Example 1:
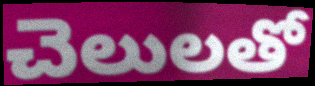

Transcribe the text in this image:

చెలులతో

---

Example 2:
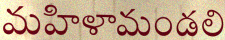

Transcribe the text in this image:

మహిళామండలి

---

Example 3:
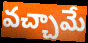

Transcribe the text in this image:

వచ్చామే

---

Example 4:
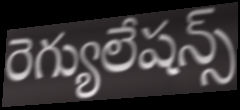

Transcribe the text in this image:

రెగ్యులేషన్స్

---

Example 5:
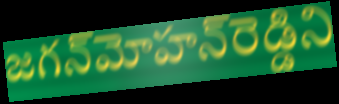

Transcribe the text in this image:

జగన్‌మోహన్‌రెడ్డిని